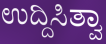
ಉದ್ದಿಸಿತ್ವಾ